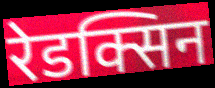
रेडक्सिन